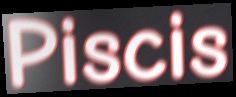
Piscis